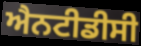
ਐਨਟੀਡੀਸੀ